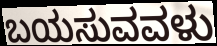
ಬಯಸುವವಳು